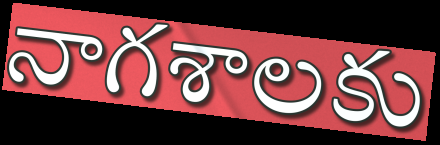
నాగశాలకు